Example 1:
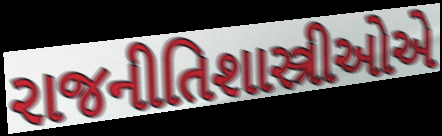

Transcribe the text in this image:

રાજનીતિશાસ્ત્રીઓએ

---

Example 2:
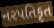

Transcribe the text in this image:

નરપતિકૃત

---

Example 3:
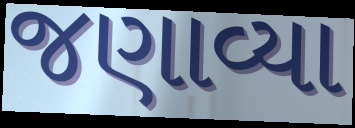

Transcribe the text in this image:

જણાવ્યા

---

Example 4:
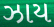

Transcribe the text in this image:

ઝાય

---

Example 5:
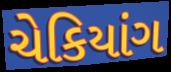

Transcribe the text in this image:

ચેકિયાંગ